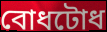
বোধটোধ